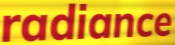
radiance